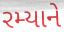
રમ્યાને